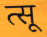
त्सू